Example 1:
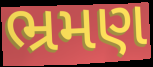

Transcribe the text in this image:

ભ્રમણ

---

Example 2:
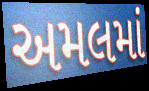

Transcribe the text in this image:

અમલમાં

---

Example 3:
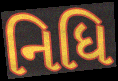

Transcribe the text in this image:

નિધિ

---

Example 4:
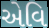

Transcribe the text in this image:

એવિ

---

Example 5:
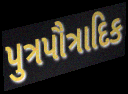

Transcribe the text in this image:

પુત્રપૌત્રાદિક